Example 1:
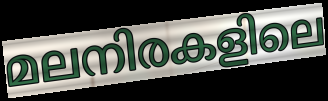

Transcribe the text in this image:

മലനിരകളിലെ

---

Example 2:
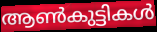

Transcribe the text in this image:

ആൺകുട്ടികൾ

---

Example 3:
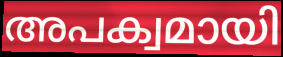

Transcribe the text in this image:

അപക്വമായി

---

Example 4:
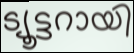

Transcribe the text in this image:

ട്യൂട്ടറായി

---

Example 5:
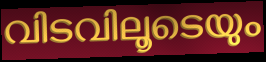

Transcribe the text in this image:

വിടവിലൂടെയും